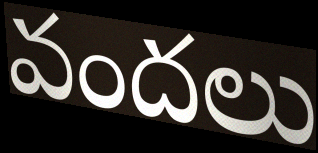
వందలు